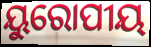
ୟୁରୋପୀୟ